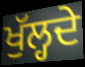
ਖੁੱਲ੍ਹਦੇ